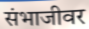
संभाजीवर